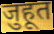
जुहूत